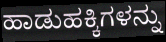
ಹಾಡುಹಕ್ಕಿಗಳನ್ನು